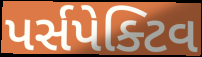
પર્સપેક્ટિવ